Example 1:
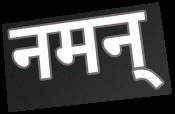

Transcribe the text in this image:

नमन्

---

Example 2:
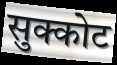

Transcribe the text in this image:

सुक्कोट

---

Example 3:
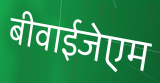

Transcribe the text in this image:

बीवाईजेएम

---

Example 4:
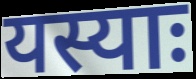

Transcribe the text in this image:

यस्याः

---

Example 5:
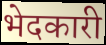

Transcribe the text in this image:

भेदकारी